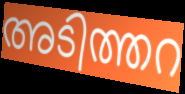
അടിത്തറ